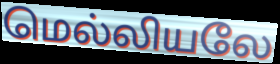
மெல்லியலே